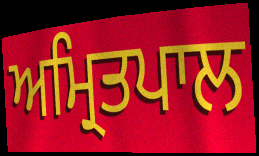
ਅਮ੍ਰਿਤਪਾਲ